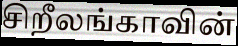
சிறீலங்காவின்